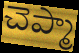
చెప్మా